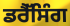
ਡਰੈੱਸਿੰਗ